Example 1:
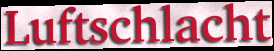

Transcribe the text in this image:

Luftschlacht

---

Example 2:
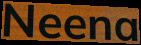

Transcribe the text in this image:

Neena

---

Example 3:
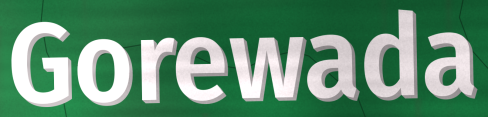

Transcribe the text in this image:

Gorewada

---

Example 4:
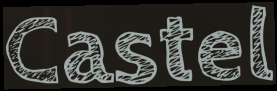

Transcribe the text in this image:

Castel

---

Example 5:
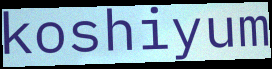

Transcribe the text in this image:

koshiyum